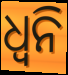
ଧ୍ୱନି